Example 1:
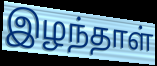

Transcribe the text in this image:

இழந்தாள்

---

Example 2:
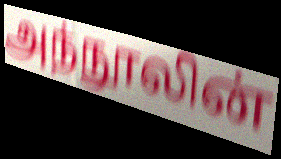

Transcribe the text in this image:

அந்நூலின்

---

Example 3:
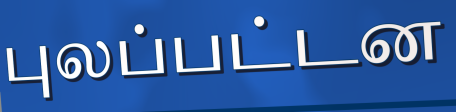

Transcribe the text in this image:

புலப்பட்டன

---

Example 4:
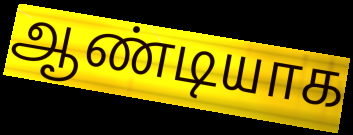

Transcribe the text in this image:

ஆண்டியாக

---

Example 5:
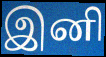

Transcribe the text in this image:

இனி